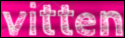
vitten